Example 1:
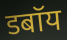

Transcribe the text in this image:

डबॉय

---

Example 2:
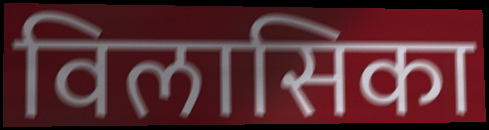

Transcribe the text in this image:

विलासिका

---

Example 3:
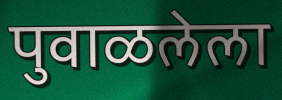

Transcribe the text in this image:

पुवाळलेला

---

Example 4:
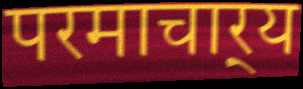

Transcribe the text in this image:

परमाचार्य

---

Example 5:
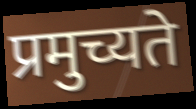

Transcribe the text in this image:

प्रमुच्यते